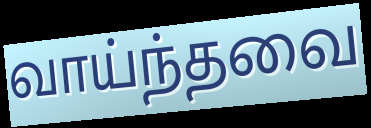
வாய்ந்தவை